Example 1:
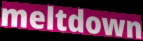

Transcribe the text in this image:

meltdown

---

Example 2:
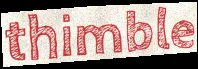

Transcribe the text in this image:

thimble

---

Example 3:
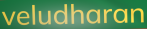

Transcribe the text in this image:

veludharan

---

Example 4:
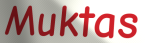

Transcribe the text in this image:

Muktas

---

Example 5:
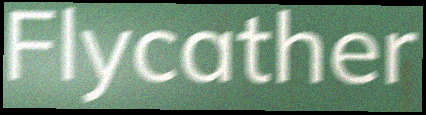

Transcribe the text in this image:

Flycather